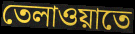
তেলাওয়াতে